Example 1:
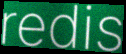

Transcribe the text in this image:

redis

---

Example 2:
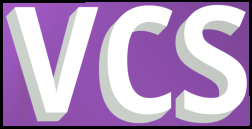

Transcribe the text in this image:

vcs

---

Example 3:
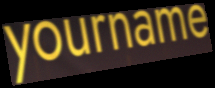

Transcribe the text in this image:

yourname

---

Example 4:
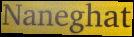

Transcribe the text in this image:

Naneghat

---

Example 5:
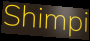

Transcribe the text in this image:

Shimpi